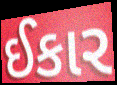
ઈકાર